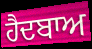
ਹੈਦਬਾਅ